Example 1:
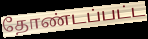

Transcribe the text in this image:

தோண்டப்பட்ட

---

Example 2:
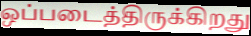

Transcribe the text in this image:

ஒப்படைத்திருக்கிறது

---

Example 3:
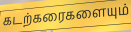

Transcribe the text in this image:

கடற்கரைகளையும்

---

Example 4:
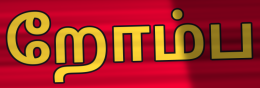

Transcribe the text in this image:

றோம்ப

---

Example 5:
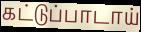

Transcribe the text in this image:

கட்டுப்பாடாய்